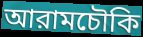
আরামচৌকি